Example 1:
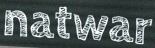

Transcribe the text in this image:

natwar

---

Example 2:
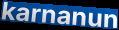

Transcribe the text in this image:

karnanun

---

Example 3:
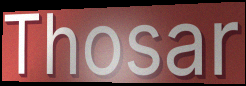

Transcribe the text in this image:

Thosar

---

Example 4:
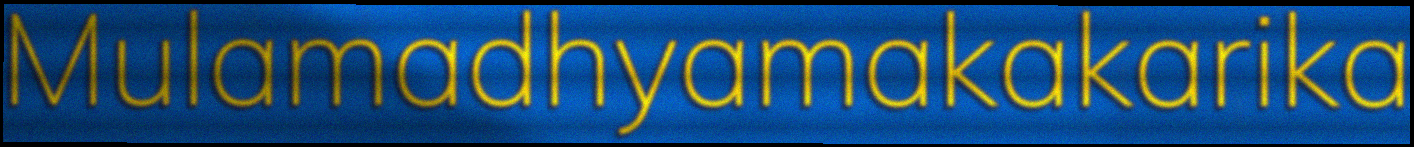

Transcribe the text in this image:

Mulamadhyamakakarika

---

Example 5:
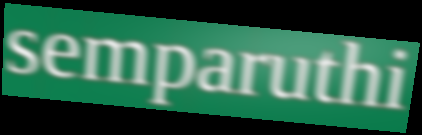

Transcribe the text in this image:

semparuthi